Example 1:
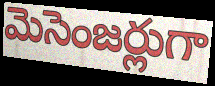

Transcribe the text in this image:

మెసెంజర్లుగా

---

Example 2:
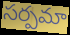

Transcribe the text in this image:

సర్పమా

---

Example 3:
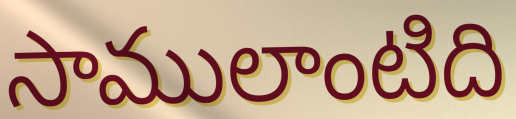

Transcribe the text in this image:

సాములాంటిది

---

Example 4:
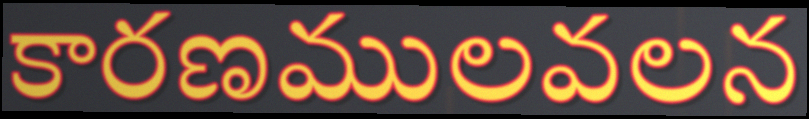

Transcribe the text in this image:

కారణములవలన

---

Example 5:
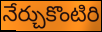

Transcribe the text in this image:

నేర్చుకొంటిరి